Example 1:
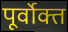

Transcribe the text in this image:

पूर्वोक्त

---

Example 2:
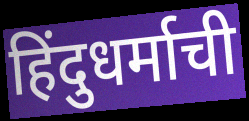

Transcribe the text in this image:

हिंदुधर्माची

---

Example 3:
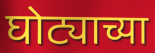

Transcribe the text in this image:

घोट्याच्या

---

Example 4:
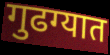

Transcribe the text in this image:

गुढग्यात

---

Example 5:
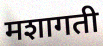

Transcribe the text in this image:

मशागती